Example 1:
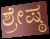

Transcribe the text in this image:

ಶ್ರೇಷ್ಠ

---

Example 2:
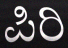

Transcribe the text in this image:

ಪಿರಿ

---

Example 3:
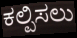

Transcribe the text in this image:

ಕಲ್ಪಿಸಲು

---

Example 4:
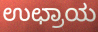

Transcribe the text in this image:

ಉಛ್ರಾಯ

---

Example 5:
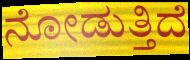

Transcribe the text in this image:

ನೋಡುತ್ತಿದೆ